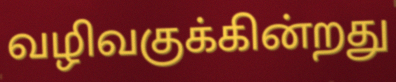
வழிவகுக்கின்றது